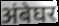
अंबेघर